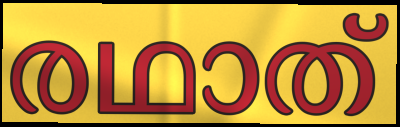
രഥാത്